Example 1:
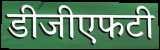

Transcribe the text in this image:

डीजीएफटी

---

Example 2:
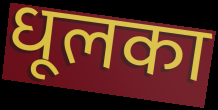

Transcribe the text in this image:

धूलका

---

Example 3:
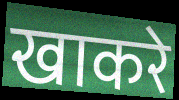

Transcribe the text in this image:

खाकरे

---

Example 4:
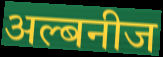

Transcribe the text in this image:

अल्‍बनीज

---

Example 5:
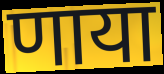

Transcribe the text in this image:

णाया